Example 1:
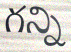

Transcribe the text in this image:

గన్ని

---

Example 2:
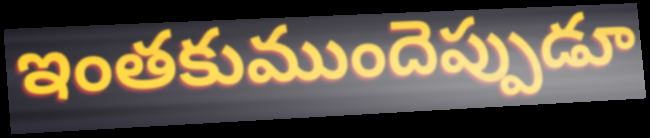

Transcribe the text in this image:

ఇంతకుముందెప్పుడూ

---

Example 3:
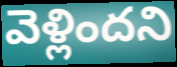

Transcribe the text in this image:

వెళ్లిందని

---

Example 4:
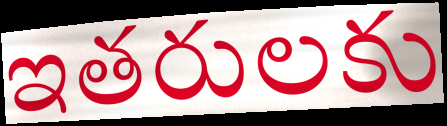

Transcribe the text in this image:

ఇతరులకు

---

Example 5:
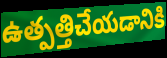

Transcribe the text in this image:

ఉత్పత్తిచేయడానికి